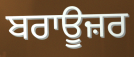
ਬਰਾਊਜ਼ਰ